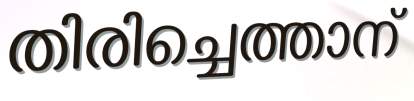
തിരിച്ചെത്താന്